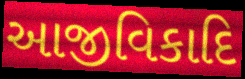
આજીવિકાદિ